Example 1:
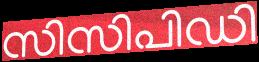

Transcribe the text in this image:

സിസിപിഡി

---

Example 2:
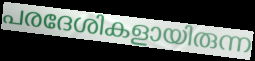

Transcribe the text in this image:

പരദേശികളായിരുന്ന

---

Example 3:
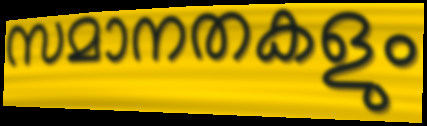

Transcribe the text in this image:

സമാനതകളും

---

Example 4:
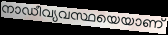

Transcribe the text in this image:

നാഡീവ്യവസ്ഥയെയാണ്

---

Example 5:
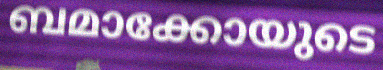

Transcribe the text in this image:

ബമാക്കോയുടെ